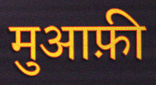
मुआफ़ी